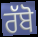
ਰੱਬੋ